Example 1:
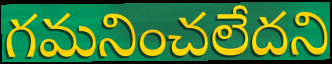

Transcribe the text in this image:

గమనించలేదని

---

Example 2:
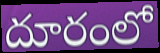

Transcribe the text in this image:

దూరంలో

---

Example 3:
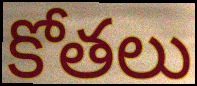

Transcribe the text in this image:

కోతలు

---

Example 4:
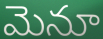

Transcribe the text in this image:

మెనూ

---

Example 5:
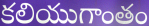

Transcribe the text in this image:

కలియుగాంతం